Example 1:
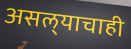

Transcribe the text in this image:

असल्याचाही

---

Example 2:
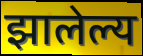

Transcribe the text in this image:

झालेल्य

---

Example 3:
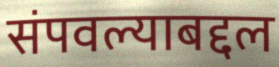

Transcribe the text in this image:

संपवल्याबद्दल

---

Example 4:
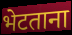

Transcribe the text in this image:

भेटताना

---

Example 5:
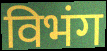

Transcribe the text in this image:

विभंग